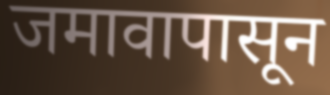
जमावापासून